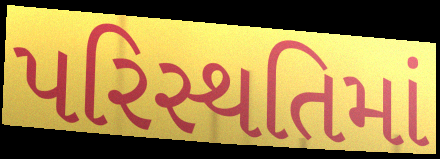
પરિસ્થતિમાં